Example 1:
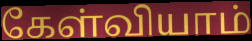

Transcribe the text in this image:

கேள்வியாம்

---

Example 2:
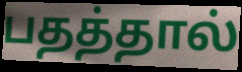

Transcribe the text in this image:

பதத்தால்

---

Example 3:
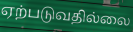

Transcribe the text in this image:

ஏற்படுவதில்லை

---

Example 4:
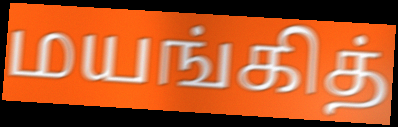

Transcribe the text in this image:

மயங்கித்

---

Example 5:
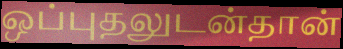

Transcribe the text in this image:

ஒப்புதலுடன்தான்